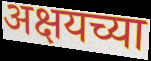
अक्षयच्या